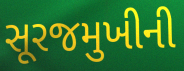
સૂરજમુખીની